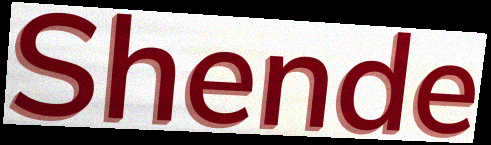
Shende